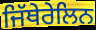
ਜਿੱਥੇਰੇਲਿਨ